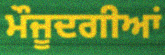
ਮੌਜੂਦਗੀਆਂ